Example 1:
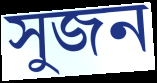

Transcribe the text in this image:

সুজন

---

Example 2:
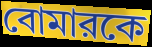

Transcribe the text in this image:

বোমারকে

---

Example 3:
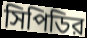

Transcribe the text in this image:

সিপিডির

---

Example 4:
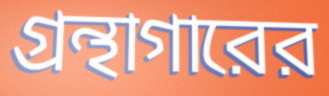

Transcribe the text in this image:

গ্রন্থাগারের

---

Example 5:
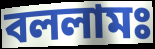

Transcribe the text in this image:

বললামঃ